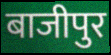
बाजीपुर